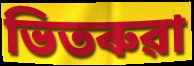
ভিতৰুৱা